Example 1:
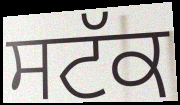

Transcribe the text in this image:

ਸਟੱਕ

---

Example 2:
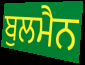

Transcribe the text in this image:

ਬੁਲਮੈਨ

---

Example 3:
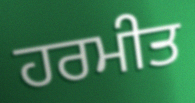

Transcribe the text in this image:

ਹਰਮੀਤ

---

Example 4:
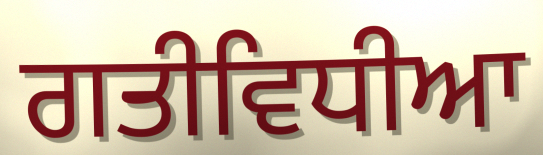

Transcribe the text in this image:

ਗਤੀਵਿਧੀਆ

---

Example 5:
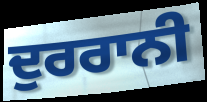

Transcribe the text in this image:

ਦੁਰਰਾਨੀ